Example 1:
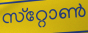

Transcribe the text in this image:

സ്‌റ്റോൺ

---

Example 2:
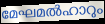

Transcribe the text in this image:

മേഘമൽഹാറും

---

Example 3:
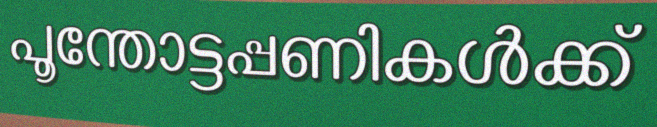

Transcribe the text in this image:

പൂന്തോട്ടപ്പണികൾക്ക്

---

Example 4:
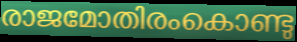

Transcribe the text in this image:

രാജമോതിരംകൊണ്ടു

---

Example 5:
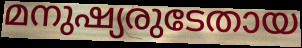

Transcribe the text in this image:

മനുഷ്യരുടേതായ